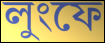
লুংফে